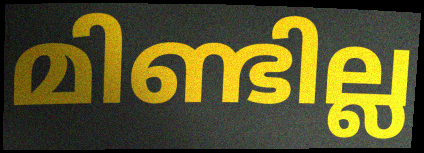
മിണ്ടില്ല